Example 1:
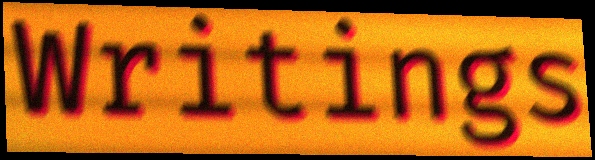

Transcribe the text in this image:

Writings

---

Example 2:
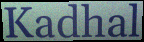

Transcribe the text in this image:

Kadhal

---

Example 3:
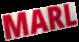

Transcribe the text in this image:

MARL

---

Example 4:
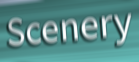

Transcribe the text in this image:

Scenery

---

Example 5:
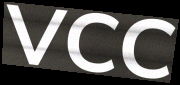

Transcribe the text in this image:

VCC